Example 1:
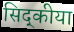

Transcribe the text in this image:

सिद्‌कीया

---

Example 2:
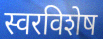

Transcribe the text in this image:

स्वरविशेष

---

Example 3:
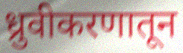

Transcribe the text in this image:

ध्रुवीकरणातून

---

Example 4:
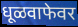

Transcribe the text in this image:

धूळवाफेवर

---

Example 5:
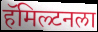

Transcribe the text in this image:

हॅमिल्टनला